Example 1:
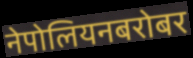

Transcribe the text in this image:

नेपोलियनबरोबर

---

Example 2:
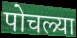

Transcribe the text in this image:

पोचल्या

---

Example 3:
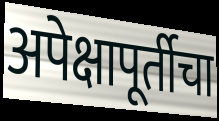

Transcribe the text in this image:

अपेक्षापूर्तीचा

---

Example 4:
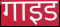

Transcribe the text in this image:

गाइड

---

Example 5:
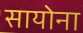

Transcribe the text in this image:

सायोना